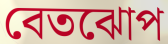
বেতঝোপ